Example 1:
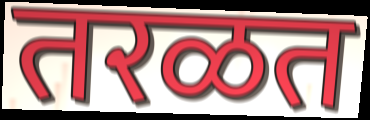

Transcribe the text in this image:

तरळत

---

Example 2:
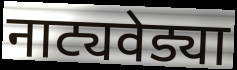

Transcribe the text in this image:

नाट्यवेड्या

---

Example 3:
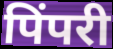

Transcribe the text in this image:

पिंपरी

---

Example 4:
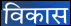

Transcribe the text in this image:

विकास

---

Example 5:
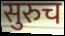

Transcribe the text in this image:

सुरुच